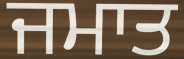
ਜਮਾਤ